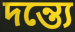
দন্ত্যে